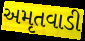
અમૃતવાડી